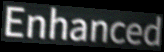
Enhanced